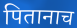
पितानाच